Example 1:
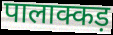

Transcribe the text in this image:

पालाक्कड़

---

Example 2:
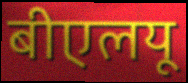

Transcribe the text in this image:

बीएलयू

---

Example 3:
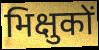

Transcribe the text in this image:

भिक्षुकों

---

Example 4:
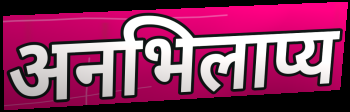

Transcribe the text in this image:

अनभिलाप्य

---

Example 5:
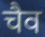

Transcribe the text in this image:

चैव